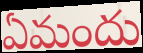
ఏమందు